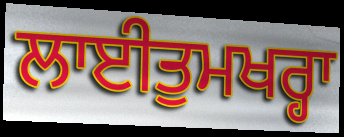
ਲਾਈਤੁਮਖਰ੍ਹਾ